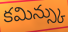
కమిన్స్కు